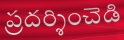
ప్రదర్శించెడి